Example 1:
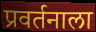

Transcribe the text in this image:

प्रवर्तनाला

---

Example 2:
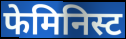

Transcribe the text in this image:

फेमिनिस्ट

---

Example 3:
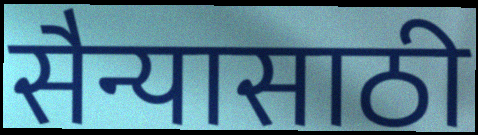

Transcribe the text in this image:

सैन्यासाठी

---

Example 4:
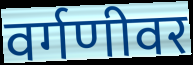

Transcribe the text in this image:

वर्गणीवर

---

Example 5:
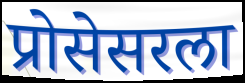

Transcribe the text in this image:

प्रोसेसरला